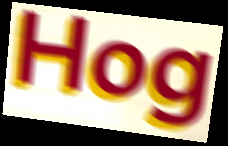
Hog